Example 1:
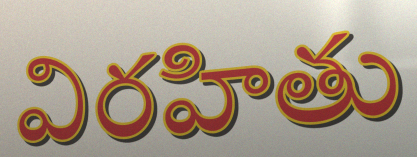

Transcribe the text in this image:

విరహితు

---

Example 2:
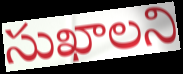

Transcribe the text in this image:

సుఖాలని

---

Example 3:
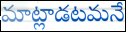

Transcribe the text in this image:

మాట్లాడటమనే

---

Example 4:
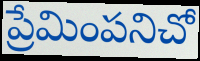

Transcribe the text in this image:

ప్రేమింపనిచో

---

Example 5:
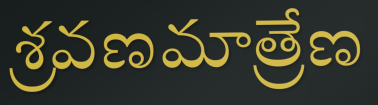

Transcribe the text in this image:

శ్రవణమాత్రేణ